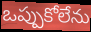
ఒప్పుకోలేను